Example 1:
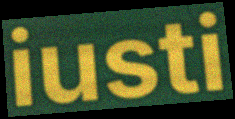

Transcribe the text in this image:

iusti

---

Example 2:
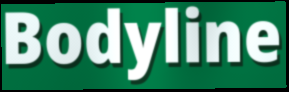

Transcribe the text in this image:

Bodyline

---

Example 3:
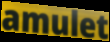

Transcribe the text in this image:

amulet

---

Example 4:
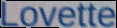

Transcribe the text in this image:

Lovette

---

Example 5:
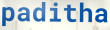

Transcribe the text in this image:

paditha